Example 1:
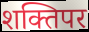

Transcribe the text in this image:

शक्तिपर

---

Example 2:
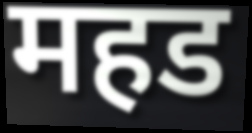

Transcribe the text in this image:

महड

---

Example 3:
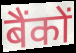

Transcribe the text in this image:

बैंकों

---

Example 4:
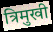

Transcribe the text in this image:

त्रिमुखी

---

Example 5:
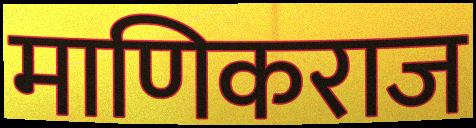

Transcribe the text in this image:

माणिकराज